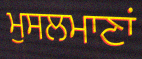
ਮੁਸਲਮਾਣਾਂ